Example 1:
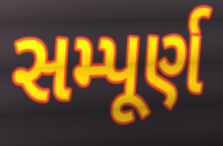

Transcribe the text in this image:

સમ્પૂર્ણ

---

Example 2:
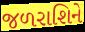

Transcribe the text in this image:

જળરાશિને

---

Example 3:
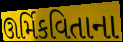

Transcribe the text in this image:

ઊર્મિકવિતાના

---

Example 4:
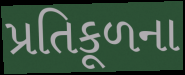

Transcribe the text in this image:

પ્રતિકૂળના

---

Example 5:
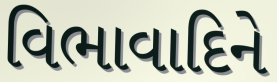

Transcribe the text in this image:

વિભાવાદિને